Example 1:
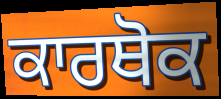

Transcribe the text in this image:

ਕਾਰਥੋਕ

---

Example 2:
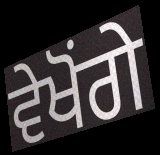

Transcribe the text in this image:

ਵੇਖੋਂਗੇ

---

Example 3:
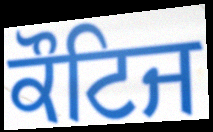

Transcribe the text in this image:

ਕੌਟਿਜ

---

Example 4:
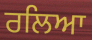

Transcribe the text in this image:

ਰਲਿਆ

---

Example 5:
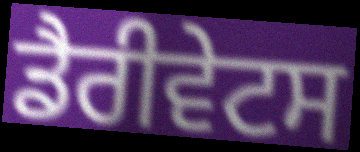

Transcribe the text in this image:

ਡੈਰੀਵੇਟਸ